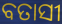
ବତାସୀ